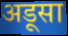
अडूसा